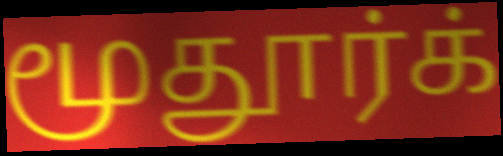
மூதூர்க்